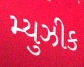
મ્યુઝીક